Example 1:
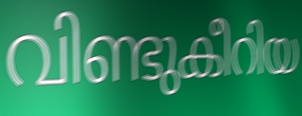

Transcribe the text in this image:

വിണ്ടുകീറിയ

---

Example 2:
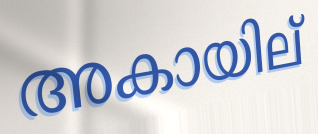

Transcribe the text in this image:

അകായില്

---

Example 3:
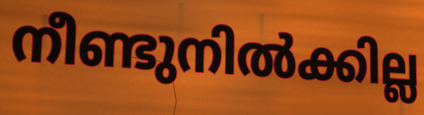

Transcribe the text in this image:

നീണ്ടുനിൽക്കില്ല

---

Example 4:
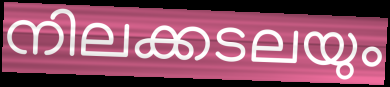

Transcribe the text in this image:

നിലക്കടലയും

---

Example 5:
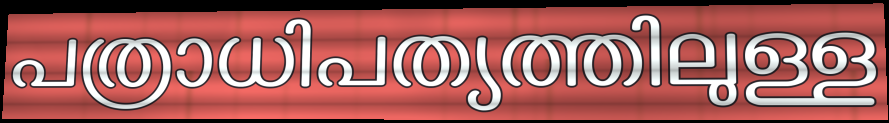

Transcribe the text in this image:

പത്രാധിപത്യത്തിലുള്ള